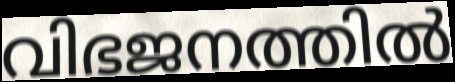
വിഭജനത്തിൽ